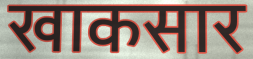
खाकसार